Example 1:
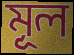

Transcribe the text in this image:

মূল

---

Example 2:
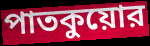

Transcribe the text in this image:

পাতকুয়োর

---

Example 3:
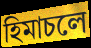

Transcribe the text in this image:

হিমাচলে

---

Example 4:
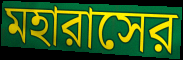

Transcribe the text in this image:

মহারাসের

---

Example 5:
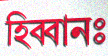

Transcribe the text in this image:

হিব্বানঃ